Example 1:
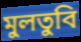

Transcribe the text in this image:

মুলতুবি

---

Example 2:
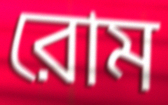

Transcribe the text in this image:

রোম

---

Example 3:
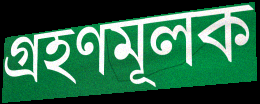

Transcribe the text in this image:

গ্রহণমূলক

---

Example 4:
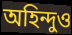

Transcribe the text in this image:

অহিন্দুও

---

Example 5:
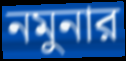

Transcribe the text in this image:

নমুনার